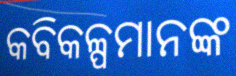
କବିକଳ୍ପମାନଙ୍କ